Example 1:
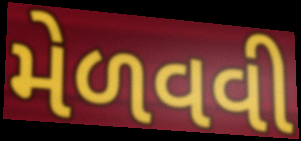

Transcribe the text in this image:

મેળવવી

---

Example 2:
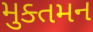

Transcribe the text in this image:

મુક્તમન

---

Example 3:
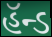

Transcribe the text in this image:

હૅન્ડ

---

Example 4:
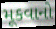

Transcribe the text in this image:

મૂકવાનો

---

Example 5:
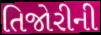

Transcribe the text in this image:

તિજોરીની